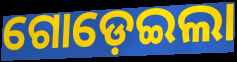
ଗୋଡ଼େଇଲା